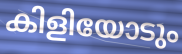
കിളിയോടും